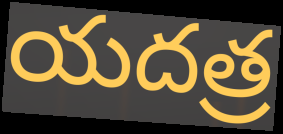
యదత్ర